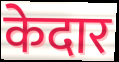
केदार